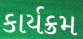
કાર્યક્રમ